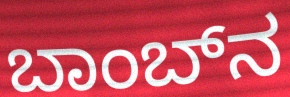
ಬಾಂಬ್‍ನ